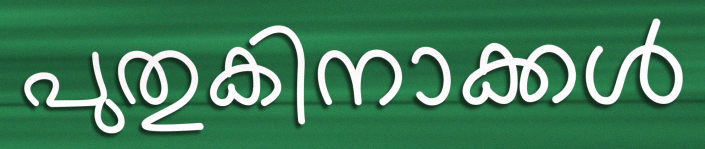
പുതുകിനാക്കൾ